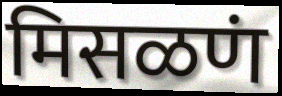
मिसळणं